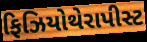
ફિઝિયોથેરાપીસ્ટ